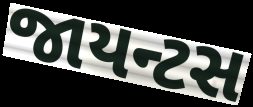
જાયન્ટસ